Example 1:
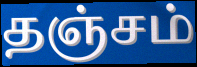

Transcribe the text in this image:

தஞ்சம்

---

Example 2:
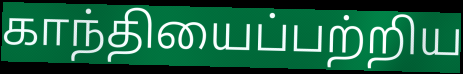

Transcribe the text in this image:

காந்தியைப்பற்றிய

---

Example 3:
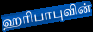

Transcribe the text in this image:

ஹரிபாபுவின்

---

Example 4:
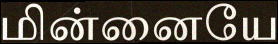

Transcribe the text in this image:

மின்னையே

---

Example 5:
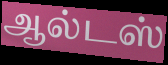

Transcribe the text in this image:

ஆல்டஸ்